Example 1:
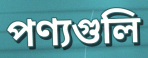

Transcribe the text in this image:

পণ্যগুলি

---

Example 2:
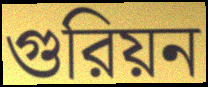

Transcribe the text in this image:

গুরিয়ন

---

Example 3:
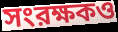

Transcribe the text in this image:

সংরক্ষকও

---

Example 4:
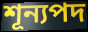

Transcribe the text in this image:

শূন্যপদ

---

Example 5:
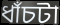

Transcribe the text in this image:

ধাঁচটা